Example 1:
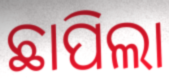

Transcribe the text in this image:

ଛାପିଲା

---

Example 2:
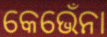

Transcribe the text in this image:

କେଭେଁନା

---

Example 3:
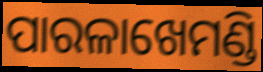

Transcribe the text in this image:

ପାରଳାଖେମଣ୍ଡି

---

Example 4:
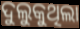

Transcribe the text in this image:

ଦୁଲୁକୁଥିଲା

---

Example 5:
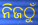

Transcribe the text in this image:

ନିଜଠୁଁ